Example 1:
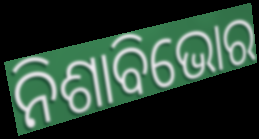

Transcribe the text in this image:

ନିଶାବିଭୋର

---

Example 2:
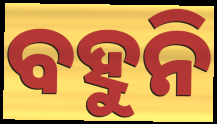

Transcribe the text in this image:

ବହୁନି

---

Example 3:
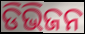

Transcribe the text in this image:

ଡିଭିଜନ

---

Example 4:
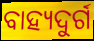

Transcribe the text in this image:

ବାହ୍ୟଦୁର୍ଗ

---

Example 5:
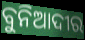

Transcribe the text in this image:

ବୁନିଆଦୀର